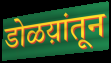
डोळय़ांतून